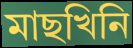
মাছখিনি